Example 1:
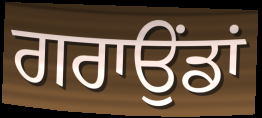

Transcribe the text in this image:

ਗਰਾਉਂਡਾਂ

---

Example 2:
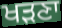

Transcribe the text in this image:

ਖੜਣਾ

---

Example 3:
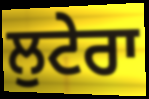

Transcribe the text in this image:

ਲੁਟੇਰਾ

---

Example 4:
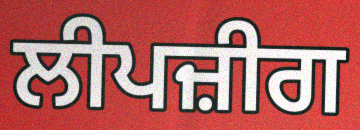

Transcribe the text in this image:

ਲੀਪਜ਼ੀਗ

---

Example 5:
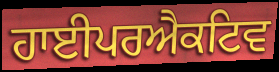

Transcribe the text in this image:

ਹਾਈਪਰਐਕਟਿਵ